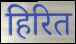
हिरित